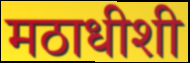
मठाधीशी